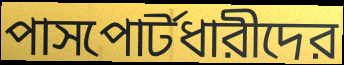
পাসপোর্টধারীদের